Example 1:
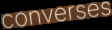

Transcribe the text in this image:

converses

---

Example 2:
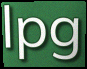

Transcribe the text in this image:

lpg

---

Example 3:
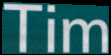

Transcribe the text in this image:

Tim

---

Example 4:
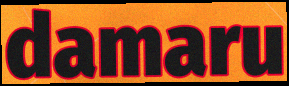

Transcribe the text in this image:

damaru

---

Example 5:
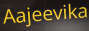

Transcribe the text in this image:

Aajeevika